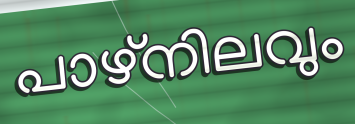
പാഴ്നിലവും